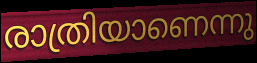
രാത്രിയാണെന്നു